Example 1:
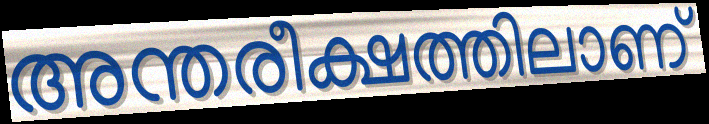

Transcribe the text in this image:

അന്തരീക്ഷത്തിലാണ്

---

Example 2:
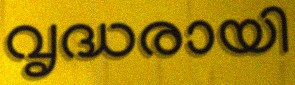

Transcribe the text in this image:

വൃദ്ധരായി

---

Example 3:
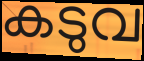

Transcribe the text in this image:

കടുവ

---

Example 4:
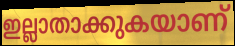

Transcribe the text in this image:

ഇല്ലാതാക്കുകയാണ്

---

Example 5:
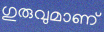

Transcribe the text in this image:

ഗുരുവുമാണ്